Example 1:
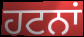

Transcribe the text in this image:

ਹਟਨਾਂ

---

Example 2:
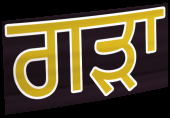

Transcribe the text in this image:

ਗੜਾ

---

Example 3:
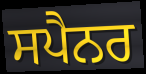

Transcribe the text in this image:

ਸਪੈਨਰ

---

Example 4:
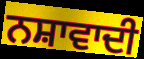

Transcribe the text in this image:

ਨਸ਼ਾਵਾਦੀ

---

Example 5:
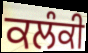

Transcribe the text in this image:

ਕਲੰਕੀ